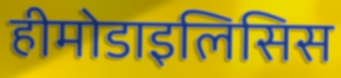
हीमोडाइलिसिस